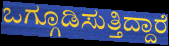
ಒಗ್ಗೂಡಿಸುತ್ತಿದ್ದಾರೆ